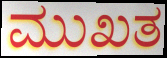
ಮುಖತ